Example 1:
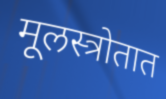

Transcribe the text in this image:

मूलस्त्रोतात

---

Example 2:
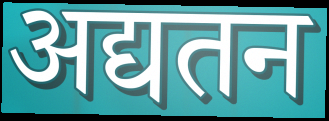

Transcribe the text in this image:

अद्यतन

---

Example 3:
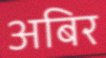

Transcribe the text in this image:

अबिर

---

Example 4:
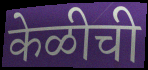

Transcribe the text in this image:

केळीची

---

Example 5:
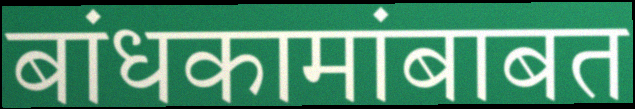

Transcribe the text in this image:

बांधकामांबाबत